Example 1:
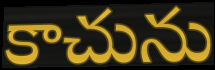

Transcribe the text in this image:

కాచును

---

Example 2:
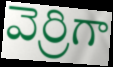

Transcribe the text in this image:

వెర్రిగా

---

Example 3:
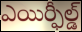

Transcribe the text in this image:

ఎయిర్ఫీల్డ్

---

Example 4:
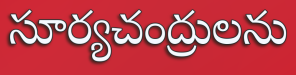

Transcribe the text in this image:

సూర్యచంద్రులను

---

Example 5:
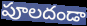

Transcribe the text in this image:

పూలదండా